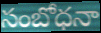
సంబోధనా